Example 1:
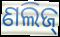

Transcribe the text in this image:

ଣଲିଜ୍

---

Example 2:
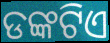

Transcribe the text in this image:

ଡଙ୍କଟିଏ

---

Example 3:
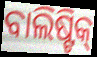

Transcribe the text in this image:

ବାଲିଷ୍ଟିକ୍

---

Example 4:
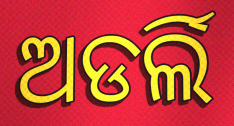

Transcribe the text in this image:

ଅଡର୍ଲି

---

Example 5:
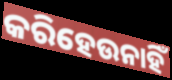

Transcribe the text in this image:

କରିହେଉନାହିଁ